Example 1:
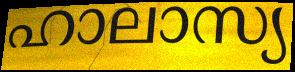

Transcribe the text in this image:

ഹാലാസ്യ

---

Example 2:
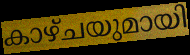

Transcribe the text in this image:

കാഴ്ചയുമായി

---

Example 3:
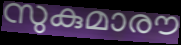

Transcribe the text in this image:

സുകുമാരൗ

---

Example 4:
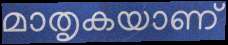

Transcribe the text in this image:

മാതൃകയാണ്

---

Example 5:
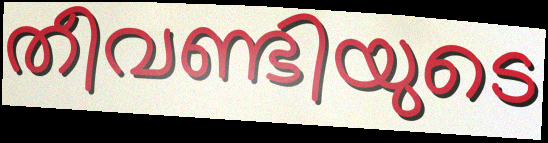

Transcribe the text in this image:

തീവണ്ടിയുടെ